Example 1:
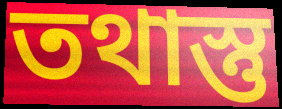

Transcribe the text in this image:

তথাস্তু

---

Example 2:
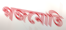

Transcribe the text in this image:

গজমোতি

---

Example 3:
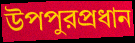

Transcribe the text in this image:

উপপুরপ্রধান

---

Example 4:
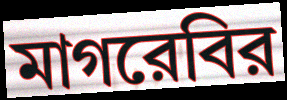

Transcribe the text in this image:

মাগরেবির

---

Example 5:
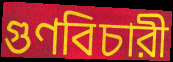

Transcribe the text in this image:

গুণবিচারী